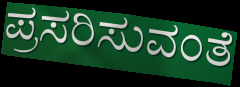
ಪ್ರಸರಿಸುವಂತೆ